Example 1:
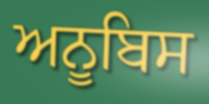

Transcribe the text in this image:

ਅਨੂਬਿਸ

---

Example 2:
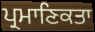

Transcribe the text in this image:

ਪ੍ਰਮਾਣਿਕਤਾ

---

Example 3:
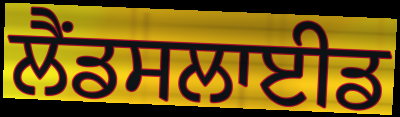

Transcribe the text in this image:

ਲੈਂਡਸਲਾਈਡ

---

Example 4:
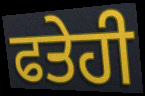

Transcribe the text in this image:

ਫਤੇਹੀ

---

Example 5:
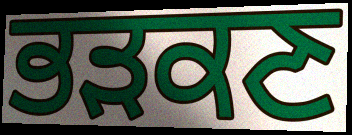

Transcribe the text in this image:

ਭੜਕਣ